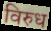
विरुध